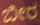
ಬೀರ